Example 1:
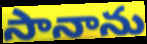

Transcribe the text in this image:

సానాను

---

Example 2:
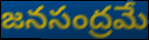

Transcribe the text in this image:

జనసంద్రమే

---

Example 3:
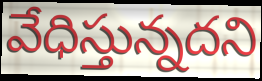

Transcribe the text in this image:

వేధిస్తున్నదని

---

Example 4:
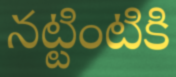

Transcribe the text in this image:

నట్టింటికి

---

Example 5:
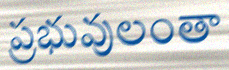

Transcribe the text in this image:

ప్రభువులంతా